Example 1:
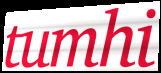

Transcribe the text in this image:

tumhi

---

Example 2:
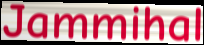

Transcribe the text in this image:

Jammihal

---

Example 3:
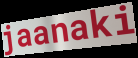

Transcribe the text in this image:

jaanaki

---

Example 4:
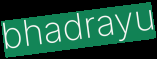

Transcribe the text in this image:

bhadrayu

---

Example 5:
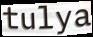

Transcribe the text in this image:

tulya